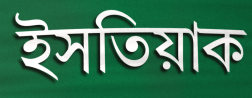
ইসতিয়াক